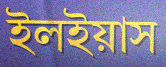
ইলইয়াস